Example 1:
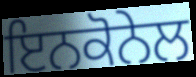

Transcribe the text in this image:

ਇਨਕੋਨੇਲ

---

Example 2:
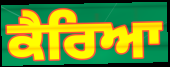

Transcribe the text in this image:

ਕੈਰਿਆ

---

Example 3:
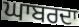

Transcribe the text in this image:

ਘਾਬਰਦਾ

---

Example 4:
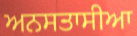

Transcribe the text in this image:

ਅਨਸਤਾਸੀਆ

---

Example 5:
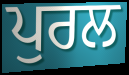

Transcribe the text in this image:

ਪੁਰਲ